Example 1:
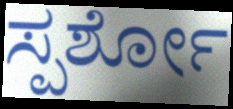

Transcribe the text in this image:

ಸ್ಪರ್ಶೋ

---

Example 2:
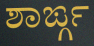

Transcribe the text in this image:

ಶಾರ್ಙ್ಗ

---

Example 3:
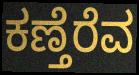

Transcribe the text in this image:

ಕಣ್ತೆರೆವ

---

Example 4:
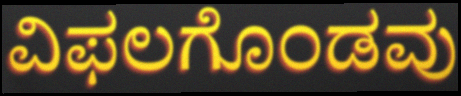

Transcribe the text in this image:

ವಿಫಲಗೊಂಡವು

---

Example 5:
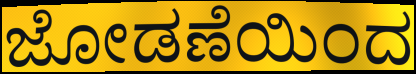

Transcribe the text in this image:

ಜೋಡಣೆಯಿಂದ